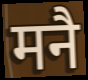
मनै